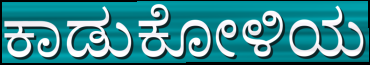
ಕಾಡುಕೋಳಿಯ